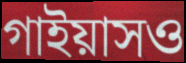
গাইয়াসও